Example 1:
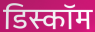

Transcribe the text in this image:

डिस्कॉम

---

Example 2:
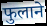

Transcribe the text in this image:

फुलाने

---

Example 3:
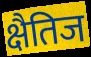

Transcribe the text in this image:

क्षैतिज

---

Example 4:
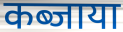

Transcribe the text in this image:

कब्जाया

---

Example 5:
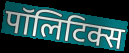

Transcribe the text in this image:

पॉलिटिक्स